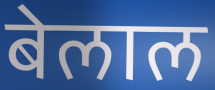
बेलाल